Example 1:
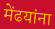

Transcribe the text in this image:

मेंढयांना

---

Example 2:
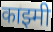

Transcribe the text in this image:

काझ्मी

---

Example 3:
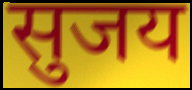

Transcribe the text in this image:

सुजय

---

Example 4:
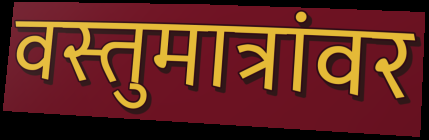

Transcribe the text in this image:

वस्तुमात्रांवर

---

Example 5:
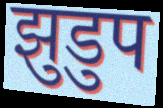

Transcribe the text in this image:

झुडुप